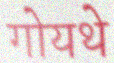
गोयथे